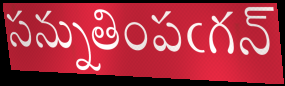
సన్నుతింపఁగన్